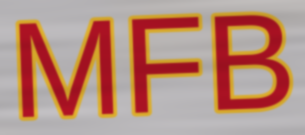
MFB